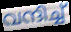
വന്ദിച്ച്